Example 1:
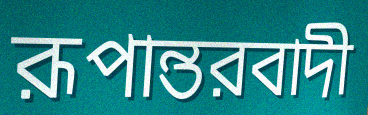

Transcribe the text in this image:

রূপান্তরবাদী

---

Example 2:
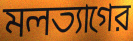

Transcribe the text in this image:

মলত্যাগের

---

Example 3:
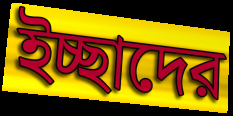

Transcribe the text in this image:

ইচ্ছাদের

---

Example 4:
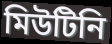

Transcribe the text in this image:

মিউটিনি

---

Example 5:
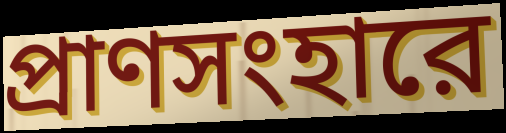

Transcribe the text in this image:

প্রাণসংহারে